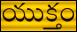
యుక్తం